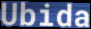
Ubida